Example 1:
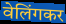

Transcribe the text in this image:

वेलिंगकर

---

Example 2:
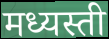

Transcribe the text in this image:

मध्यस्ती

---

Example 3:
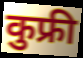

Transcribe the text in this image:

कुफ्री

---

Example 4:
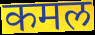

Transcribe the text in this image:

कमल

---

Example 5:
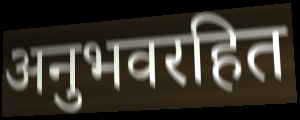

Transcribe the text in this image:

अनुभवरहित